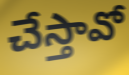
చేస్తావో